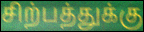
சிற்பத்துக்கு